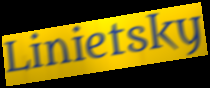
Linietsky